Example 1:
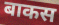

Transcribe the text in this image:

बाकस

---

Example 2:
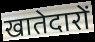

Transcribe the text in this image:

खातेदारों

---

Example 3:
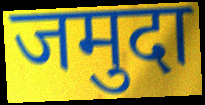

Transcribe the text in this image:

जमुदा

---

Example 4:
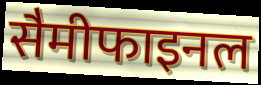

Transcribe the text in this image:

सैमीफाइनल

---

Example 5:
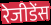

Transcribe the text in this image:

रेजीडेंस